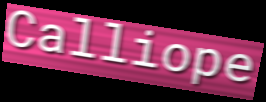
Calliope